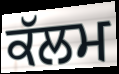
ਕੱਲਮ